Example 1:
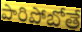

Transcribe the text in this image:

పారిపోబోతే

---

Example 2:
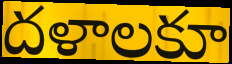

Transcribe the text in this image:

దళాలకూ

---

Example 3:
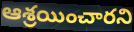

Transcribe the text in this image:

ఆశ్రయించారని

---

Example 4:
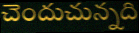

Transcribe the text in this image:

చెందుచున్నది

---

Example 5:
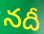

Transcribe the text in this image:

నదీ